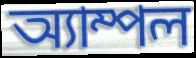
অ্যাম্পল